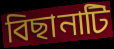
বিছানাটি